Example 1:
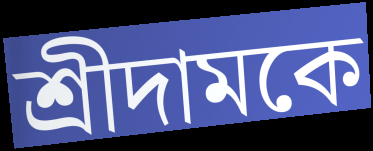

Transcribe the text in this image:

শ্রীদামকে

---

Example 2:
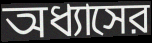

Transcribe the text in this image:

অধ্যাসের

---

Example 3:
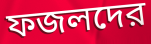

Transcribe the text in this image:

ফজলদের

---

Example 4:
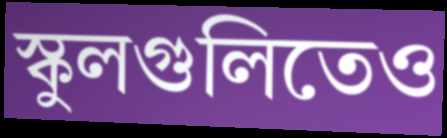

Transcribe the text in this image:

স্কুলগুলিতেও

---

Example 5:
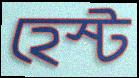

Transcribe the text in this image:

হেস্ট